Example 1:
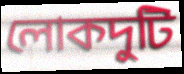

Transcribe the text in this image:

লোকদুটি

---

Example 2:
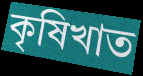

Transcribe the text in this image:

কৃষিখাত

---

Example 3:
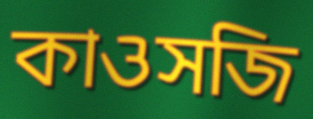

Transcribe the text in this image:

কাওসজি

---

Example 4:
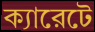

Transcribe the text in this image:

ক্যারেটে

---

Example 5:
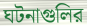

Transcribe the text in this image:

ঘটনাগুলির